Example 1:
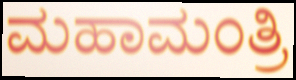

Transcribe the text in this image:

ಮಹಾಮಂತ್ರಿ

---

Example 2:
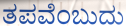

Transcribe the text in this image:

ತಪವೆಂಬುದು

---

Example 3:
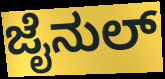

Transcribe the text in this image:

ಜೈನುಲ್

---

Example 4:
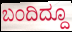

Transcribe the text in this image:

ಬಂದಿದ್ದೂ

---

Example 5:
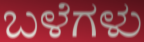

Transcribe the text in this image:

ಬಳೆಗಳು